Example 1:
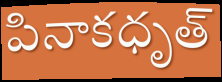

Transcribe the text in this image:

పినాకధృత్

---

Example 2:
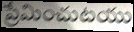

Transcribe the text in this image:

ప్రేమించుటయు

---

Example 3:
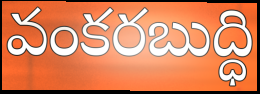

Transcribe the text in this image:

వంకరబుద్ధి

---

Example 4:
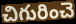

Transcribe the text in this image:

చిగురించె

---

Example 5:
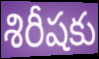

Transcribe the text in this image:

శిరీషకు